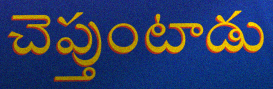
చెప్తుంటాడు